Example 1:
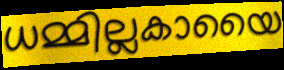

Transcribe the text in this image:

ധമ്മില്ലകായൈ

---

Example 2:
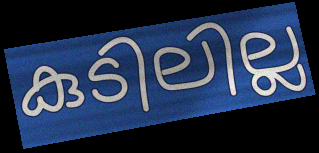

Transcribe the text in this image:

കുടിലില്ല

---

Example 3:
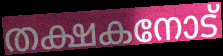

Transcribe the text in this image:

തക്ഷകനോട്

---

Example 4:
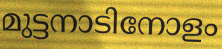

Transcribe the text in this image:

മുട്ടനാടിനോളം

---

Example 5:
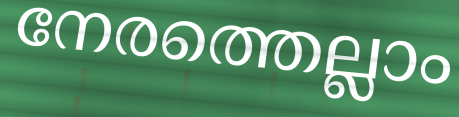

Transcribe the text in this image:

നേരത്തെല്ലാം